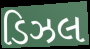
ડિઝલ